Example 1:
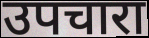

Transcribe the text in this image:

उपचारा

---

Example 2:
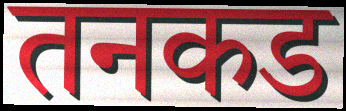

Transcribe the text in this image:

तनकड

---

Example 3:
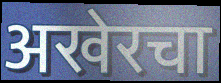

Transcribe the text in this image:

अखेरचा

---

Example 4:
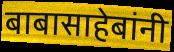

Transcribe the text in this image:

बाबासाहेबांनी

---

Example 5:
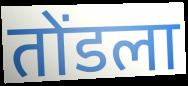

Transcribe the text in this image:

तोंडला